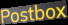
Postbox